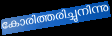
കോരിത്തരിച്ചുനിന്നു